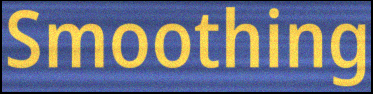
Smoothing